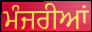
ਮੰਜਰੀਆਂ